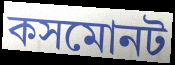
কসমোনট